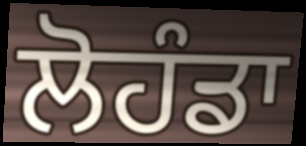
ਲੋਹੰਡਾ